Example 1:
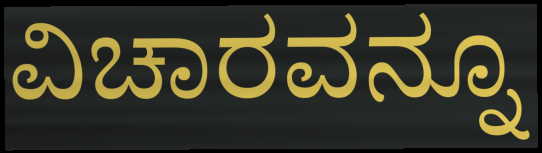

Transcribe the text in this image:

ವಿಚಾರವನ್ನೂ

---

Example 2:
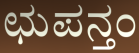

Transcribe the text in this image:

ಛುಪನ್ತಂ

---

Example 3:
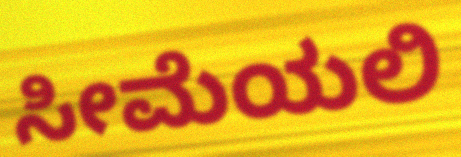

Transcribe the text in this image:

ಸೀಮೆಯಲಿ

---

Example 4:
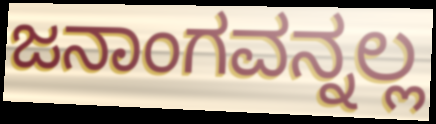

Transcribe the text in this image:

ಜನಾಂಗವನ್ನಲ್ಲ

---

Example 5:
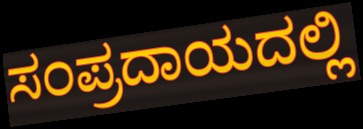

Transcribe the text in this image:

ಸಂಪ್ರದಾಯದಲ್ಲಿ